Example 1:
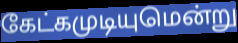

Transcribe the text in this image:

கேட்கமுடியுமென்று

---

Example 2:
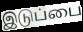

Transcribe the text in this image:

இடுப்பை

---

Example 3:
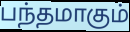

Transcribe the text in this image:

பந்தமாகும்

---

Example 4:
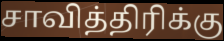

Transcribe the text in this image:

சாவித்திரிக்கு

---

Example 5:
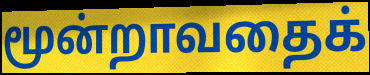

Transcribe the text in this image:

மூன்றாவதைக்